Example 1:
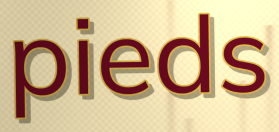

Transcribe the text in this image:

pieds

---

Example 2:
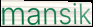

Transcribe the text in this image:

mansik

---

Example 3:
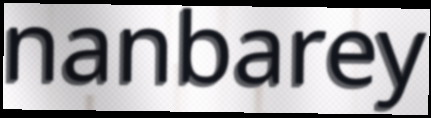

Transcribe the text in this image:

nanbarey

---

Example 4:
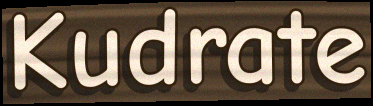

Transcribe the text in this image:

Kudrate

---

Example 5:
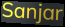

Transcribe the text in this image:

Sanjar